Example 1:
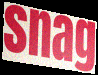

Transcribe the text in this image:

snag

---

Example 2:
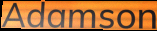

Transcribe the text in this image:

Adamson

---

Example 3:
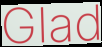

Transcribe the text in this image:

Glad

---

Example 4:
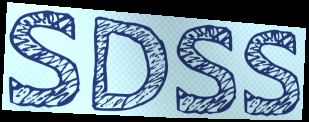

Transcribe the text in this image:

SDSS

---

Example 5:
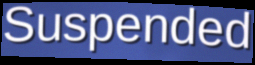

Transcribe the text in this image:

Suspended